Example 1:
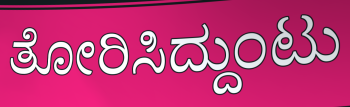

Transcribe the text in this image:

ತೋರಿಸಿದ್ದುಂಟು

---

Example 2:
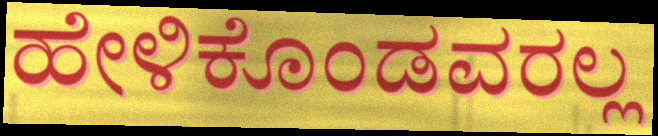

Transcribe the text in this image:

ಹೇಳಿಕೊಂಡವರಲ್ಲ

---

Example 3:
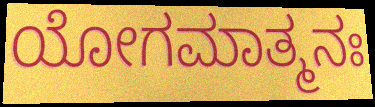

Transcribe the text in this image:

ಯೋಗಮಾತ್ಮನಃ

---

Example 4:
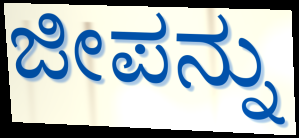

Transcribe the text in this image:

ಜೀಪನ್ನು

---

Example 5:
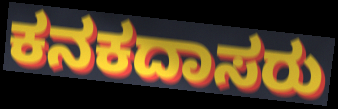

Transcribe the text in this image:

ಕನಕದಾಸರು